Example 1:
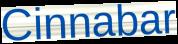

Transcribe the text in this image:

Cinnabar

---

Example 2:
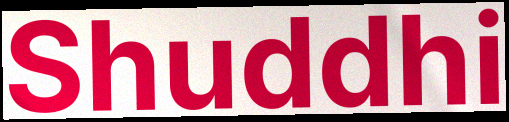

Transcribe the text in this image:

Shuddhi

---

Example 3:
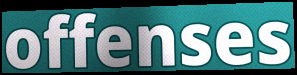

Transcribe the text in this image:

offenses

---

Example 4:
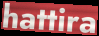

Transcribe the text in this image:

hattira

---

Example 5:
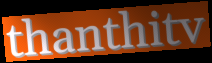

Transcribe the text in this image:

thanthitv